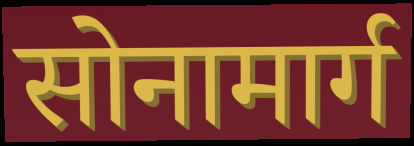
सोनामार्ग